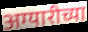
अग्यारीच्या